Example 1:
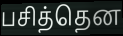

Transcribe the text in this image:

பசித்தென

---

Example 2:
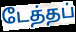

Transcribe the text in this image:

டேத்தப்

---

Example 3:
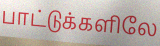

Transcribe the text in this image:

பாட்டுக்களிலே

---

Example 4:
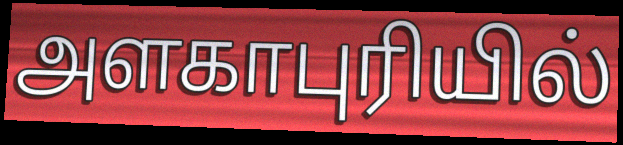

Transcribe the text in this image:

அளகாபுரியில்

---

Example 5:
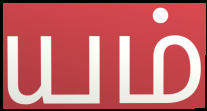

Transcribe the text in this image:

யம்